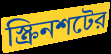
স্ক্রিনশটের